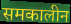
समकालीन